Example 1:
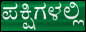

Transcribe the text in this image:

ಪಕ್ಷಿಗಳಲ್ಲಿ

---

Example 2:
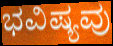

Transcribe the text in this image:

ಭವಿಷ್ಯವು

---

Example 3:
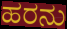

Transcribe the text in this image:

ಹರನು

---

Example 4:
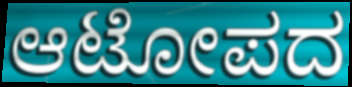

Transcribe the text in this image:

ಆಟೋಪದ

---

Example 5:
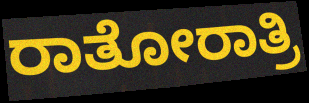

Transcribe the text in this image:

ರಾತೋರಾತ್ರಿ